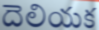
దెలియక